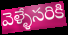
వెళ్ళేసరికి